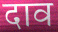
दाव